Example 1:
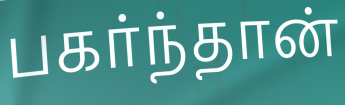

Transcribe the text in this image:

பகர்ந்தான்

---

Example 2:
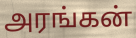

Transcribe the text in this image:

அரங்கன்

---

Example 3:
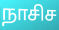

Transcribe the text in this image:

நாசிச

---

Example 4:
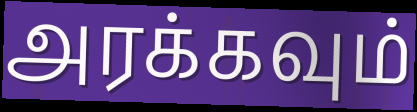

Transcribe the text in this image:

அரக்கவும்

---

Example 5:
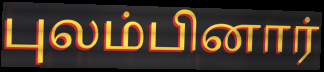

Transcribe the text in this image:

புலம்பினார்